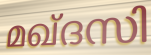
മഖ്ദസി